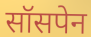
सॉसपेन